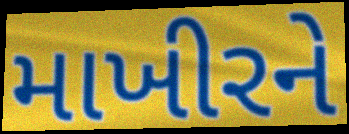
માખીરને